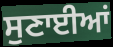
ਸੁਣਾਈਆਂ